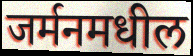
जर्मनमधील